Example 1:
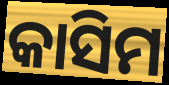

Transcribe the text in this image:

କାସିମ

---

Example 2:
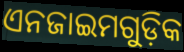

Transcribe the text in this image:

ଏନଜାଇମଗୁଡ଼ିକ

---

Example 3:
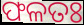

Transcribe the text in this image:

ଫଳତଃ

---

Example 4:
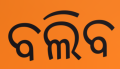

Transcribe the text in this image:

ବଲିବ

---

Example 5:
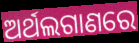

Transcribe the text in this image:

ଅର୍ଥଲଗାଣରେ